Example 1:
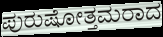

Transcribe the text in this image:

ಪುರುಷೋತ್ತಮರಾದ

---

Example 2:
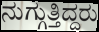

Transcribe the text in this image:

ನುಗ್ಗುತ್ತಿದ್ದರು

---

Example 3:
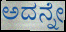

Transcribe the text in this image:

ಅದನ್ನೇ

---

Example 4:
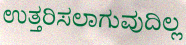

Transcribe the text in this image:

ಉತ್ತರಿಸಲಾಗುವುದಿಲ್ಲ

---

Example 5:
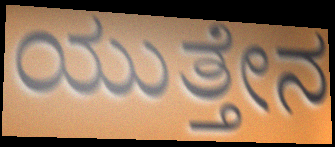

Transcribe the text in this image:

ಯುತ್ತೇನ